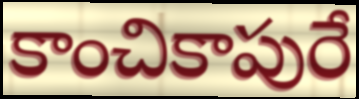
కాంచికాపురే